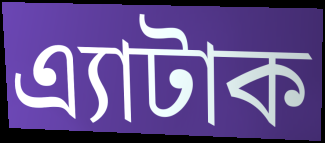
এ্যাটাক